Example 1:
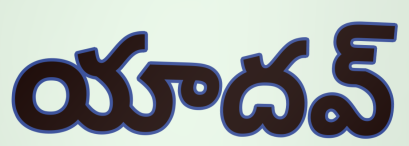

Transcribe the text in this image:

యాదవ్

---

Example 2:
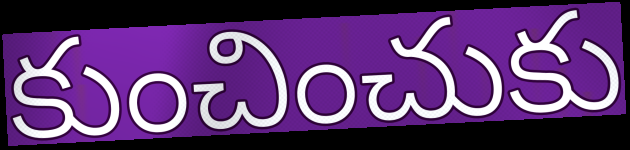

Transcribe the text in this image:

కుంచించుకు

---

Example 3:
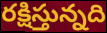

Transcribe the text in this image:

రక్షిస్తున్నది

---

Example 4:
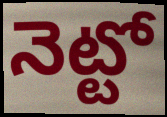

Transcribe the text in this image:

నెట్టో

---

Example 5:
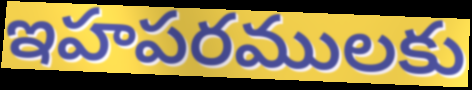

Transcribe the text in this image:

ఇహపరములకు